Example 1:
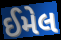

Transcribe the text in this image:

ઈમેલ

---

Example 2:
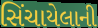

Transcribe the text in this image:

સિંચાયેલાની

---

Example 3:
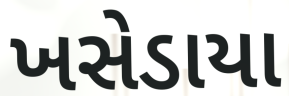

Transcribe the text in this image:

ખસેડાયા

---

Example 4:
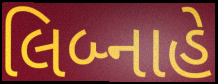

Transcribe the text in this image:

લિબ્નાહે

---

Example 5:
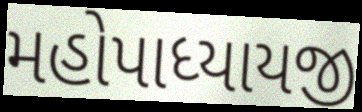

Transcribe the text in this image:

મહોપાધ્યાયજી